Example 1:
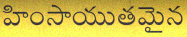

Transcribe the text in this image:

హింసాయుతమైన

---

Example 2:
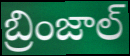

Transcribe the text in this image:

బ్రింజాల్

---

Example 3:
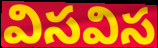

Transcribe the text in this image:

విసవిస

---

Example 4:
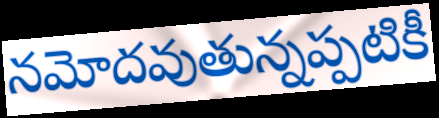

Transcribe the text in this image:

నమోదవుతున్నప్పటికీ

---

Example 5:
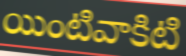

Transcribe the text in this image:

యింటివాకిటి